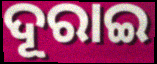
ଦୂରାଇ